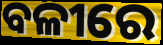
ବଳୀରେ